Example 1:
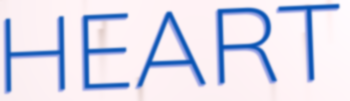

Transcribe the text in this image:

HEART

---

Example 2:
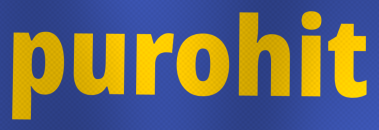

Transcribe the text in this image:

purohit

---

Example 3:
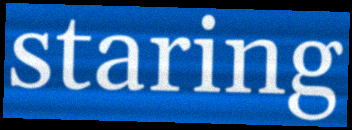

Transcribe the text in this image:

staring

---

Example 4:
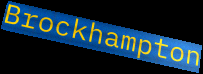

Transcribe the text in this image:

Brockhampton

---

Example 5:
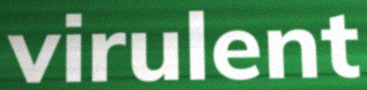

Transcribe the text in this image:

virulent